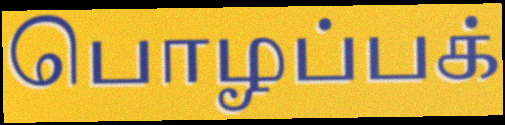
பொழப்பக்